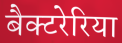
बैक्टरेरिया